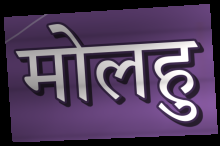
मोलहु